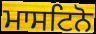
ਮਾਸਟਿਨੋ